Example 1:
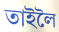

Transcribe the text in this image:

তাইলৈ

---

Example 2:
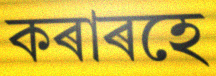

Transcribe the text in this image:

কৰাৰহে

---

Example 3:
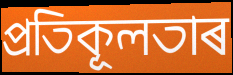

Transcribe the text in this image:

প্ৰতিকূলতাৰ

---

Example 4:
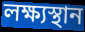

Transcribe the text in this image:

লক্ষ্যস্থান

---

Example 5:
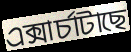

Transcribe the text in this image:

এক্সাৰ্চাটাছে